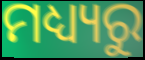
ମଧ୍ୟ୍ୟରୁ